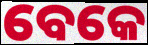
ବେକେ